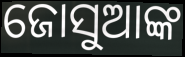
ଜୋସୁଆଙ୍କ